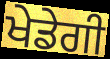
ਖੇਡੇਗੀ